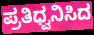
ಪ್ರತಿಧ್ವನಿಸಿದ